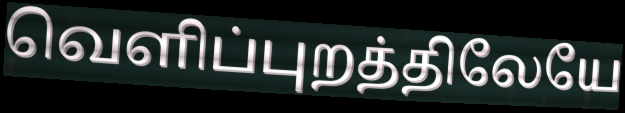
வெளிப்புறத்திலேயே